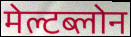
मेल्टब्लोन